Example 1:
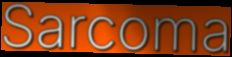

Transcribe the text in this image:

Sarcoma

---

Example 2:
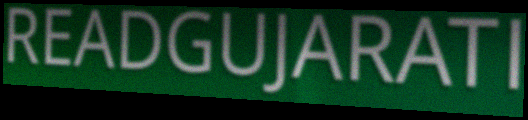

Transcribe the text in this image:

READGUJARATI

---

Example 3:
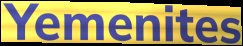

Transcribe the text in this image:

Yemenites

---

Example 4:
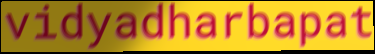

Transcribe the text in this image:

vidyadharbapat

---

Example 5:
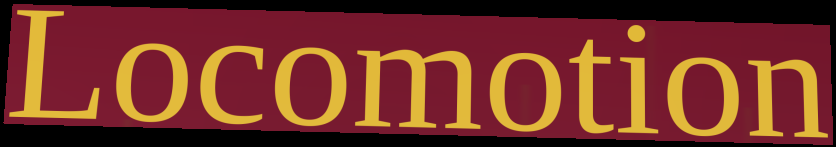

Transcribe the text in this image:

Locomotion